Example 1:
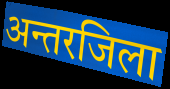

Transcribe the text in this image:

अन्तरजिला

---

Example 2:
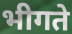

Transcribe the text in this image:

भीगते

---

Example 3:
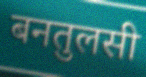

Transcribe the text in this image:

बनतुलसी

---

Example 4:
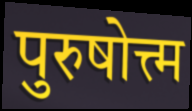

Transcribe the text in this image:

पुरुषोत्त्म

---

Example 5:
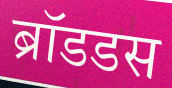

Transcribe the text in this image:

ब्रॉडडस